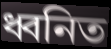
ধ্বনিত